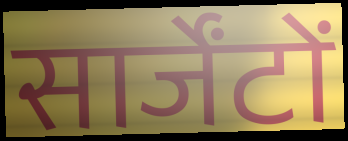
सार्जेंटों